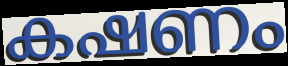
കഷണം